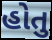
હોતુ